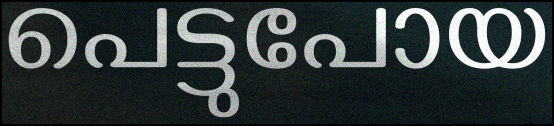
പെട്ടുപോയ